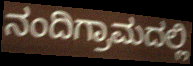
ನಂದಿಗ್ರಾಮದಲ್ಲಿ